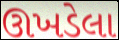
ઊખડેલા